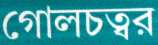
গোলচত্বর